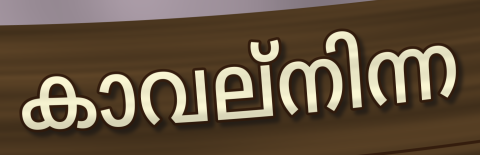
കാവല്നിന്ന